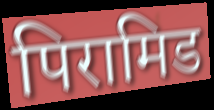
पिरामिड